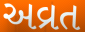
અવ્રત